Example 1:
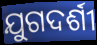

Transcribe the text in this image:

ଯୁଗଦର୍ଶୀ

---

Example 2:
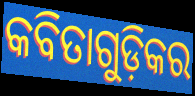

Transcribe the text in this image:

କବିତାଗୁଡ଼ିକର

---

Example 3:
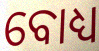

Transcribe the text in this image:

ବୋଧ୍ୟ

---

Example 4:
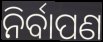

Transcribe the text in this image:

ନିର୍ବାପଣ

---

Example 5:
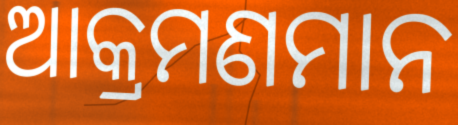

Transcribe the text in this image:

ଆକ୍ରମଣମାନ